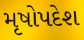
મૃષોપદેશ